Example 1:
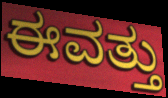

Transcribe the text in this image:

ಈವತ್ತು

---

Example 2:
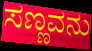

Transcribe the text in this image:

ಸಣ್ಣವನು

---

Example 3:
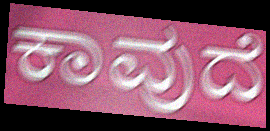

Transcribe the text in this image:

ಕಾವುದೆ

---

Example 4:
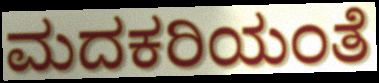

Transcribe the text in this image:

ಮದಕರಿಯಂತೆ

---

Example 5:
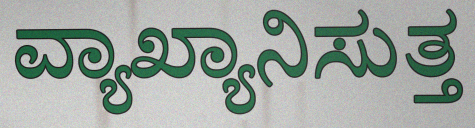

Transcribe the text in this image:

ವ್ಯಾಖ್ಯಾನಿಸುತ್ತ